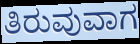
ತಿರುವುವಾಗ